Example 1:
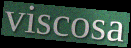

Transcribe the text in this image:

viscosa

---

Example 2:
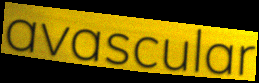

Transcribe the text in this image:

avascular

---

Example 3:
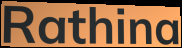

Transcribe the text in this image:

Rathina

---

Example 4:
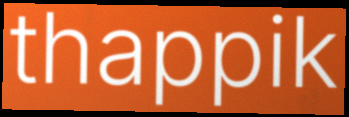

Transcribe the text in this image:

thappik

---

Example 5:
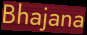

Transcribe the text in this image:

Bhajana